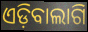
ଏଡ଼ିବାଲାଗି